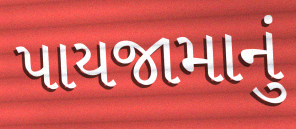
પાયજામાનું